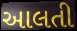
આલતી